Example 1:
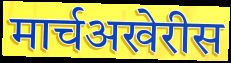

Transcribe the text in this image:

मार्चअखेरीस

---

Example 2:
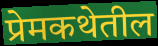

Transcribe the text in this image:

प्रेमकथेतील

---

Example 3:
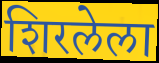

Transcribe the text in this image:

शिरलेला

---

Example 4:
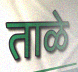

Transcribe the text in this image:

ताळे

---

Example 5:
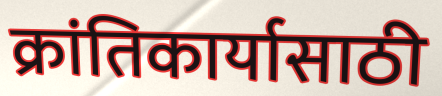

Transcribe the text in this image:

क्रांतिकार्यासाठी